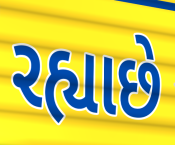
રહ્યાછે